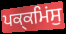
ਪਕ੍ਕਮਿਂਸੁ